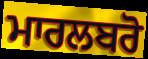
ਮਾਰਲਬਰੋ